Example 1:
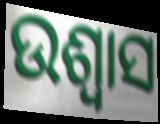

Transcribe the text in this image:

ଉଶ୍ୱାସ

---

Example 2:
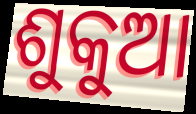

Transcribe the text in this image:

ଶୁକୁଆ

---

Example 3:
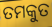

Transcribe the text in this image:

ତମକୁତ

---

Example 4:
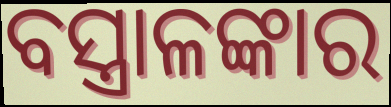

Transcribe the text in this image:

ବସ୍ତ୍ରାଳଙ୍କାର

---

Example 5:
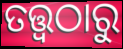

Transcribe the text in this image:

ତତ୍ତ୍ବଠାରୁ